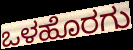
ಒಳಹೊರಗು